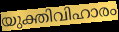
യുക്തിവിഹാരം